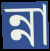
ন্না